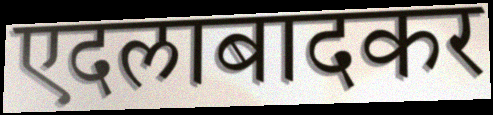
एदलाबादकर